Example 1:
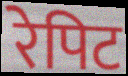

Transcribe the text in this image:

रेपिट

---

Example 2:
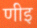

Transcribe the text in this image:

णीइ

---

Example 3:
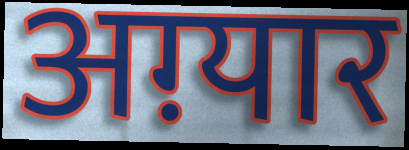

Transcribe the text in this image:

अग़्यार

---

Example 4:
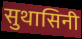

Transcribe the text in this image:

सुथासिनी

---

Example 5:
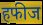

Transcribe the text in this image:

हफीज